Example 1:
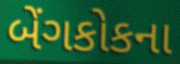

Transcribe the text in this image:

બેંગકોકના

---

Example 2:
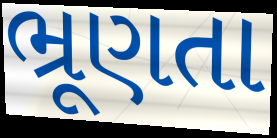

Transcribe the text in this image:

ભ્રૂણતા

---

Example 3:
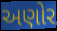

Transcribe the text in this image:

અણોર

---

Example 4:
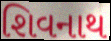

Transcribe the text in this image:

શિવનાથ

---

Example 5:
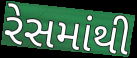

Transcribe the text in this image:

રેસમાંથી